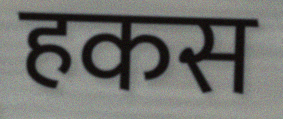
हकस